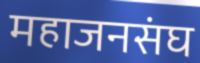
महाजनसंघ